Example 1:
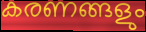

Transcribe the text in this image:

കരണങ്ങളും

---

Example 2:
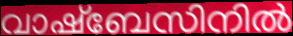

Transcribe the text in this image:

വാഷ്ബേസിനിൽ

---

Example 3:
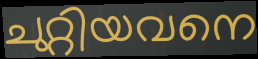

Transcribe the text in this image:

ചുറ്റിയവനെ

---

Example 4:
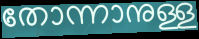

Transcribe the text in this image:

തോന്നാനുള്ള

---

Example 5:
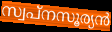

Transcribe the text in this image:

സ്വപ്നസൂര്യൻ